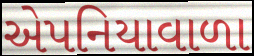
એપનિયાવાળા